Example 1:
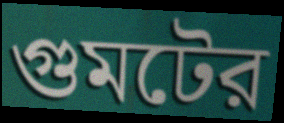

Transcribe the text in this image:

গুমটের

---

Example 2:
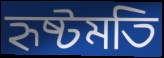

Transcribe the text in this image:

হৃষ্টমতি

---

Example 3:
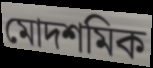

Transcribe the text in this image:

মোদশমিক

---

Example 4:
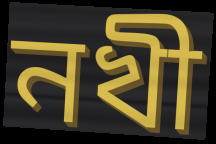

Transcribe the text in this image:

নখী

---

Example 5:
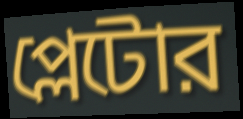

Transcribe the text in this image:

প্লেটোর